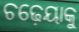
ଚଢ଼େୟାକୁ